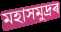
মহাসমুদ্ৰৰ